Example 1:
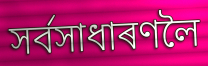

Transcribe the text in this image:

সৰ্বসাধাৰণলৈ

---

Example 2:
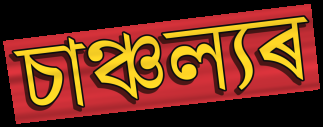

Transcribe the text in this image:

চাঞ্চল্যৰ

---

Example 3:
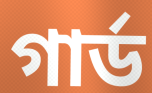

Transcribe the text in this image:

গাৰ্ড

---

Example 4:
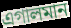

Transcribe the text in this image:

এগালমান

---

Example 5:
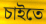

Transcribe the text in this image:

চাইতে